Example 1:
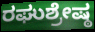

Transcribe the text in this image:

ರಘುಶ್ರೇಷ್ಠ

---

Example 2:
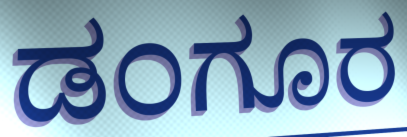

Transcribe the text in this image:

ಡಂಗೂರ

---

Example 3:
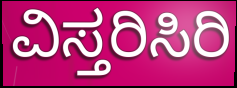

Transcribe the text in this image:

ವಿಸ್ತರಿಸಿರಿ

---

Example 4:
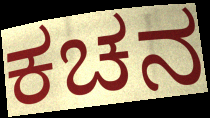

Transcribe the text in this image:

ಕಚನ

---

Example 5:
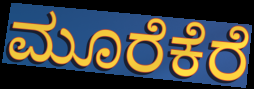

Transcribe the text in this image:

ಮೂರೆಕೆರೆ